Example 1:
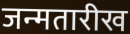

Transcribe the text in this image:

जन्मतारीख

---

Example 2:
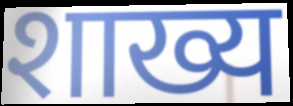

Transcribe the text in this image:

शाख्य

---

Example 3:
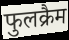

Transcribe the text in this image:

फुलक्रैम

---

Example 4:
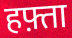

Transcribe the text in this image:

हफ़्ता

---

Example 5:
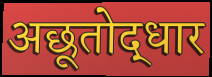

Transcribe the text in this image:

अछूतोद्धार